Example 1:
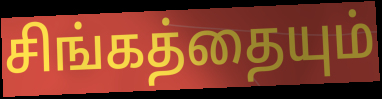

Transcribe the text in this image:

சிங்கத்தையும்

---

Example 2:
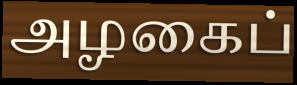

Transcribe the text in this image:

அழகைப்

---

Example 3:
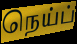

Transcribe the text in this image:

நெய்ப்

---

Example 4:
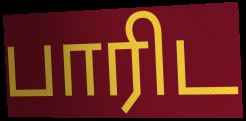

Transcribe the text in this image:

பாரிட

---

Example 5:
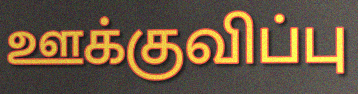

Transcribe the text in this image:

ஊக்குவிப்பு